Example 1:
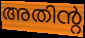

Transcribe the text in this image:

അതിന്റ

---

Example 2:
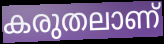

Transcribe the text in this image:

കരുതലാണ്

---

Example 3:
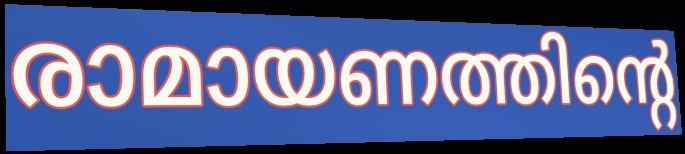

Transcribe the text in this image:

രാമായണത്തിന്റെ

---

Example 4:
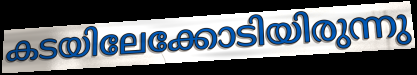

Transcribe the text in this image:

കടയിലേക്കോടിയിരുന്നു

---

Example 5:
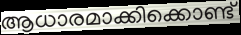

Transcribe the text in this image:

ആധാരമാക്കിക്കൊണ്ട്